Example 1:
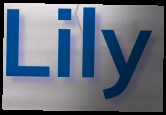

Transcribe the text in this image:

Lily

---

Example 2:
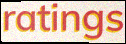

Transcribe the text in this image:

ratings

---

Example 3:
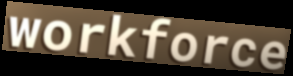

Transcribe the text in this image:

workforce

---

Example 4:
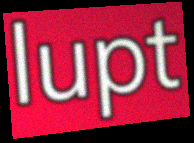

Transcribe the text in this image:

lupt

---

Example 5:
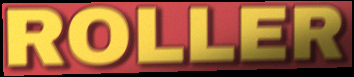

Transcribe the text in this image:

ROLLER